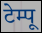
टेम्पू